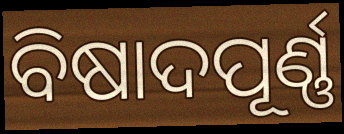
ବିଷାଦପୂର୍ଣ୍ଣ